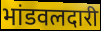
भांडवलदारी